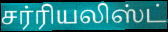
சர்ரியலிஸ்ட்